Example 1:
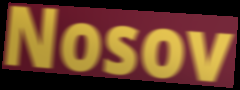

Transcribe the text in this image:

Nosov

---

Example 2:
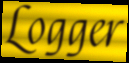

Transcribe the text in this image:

Logger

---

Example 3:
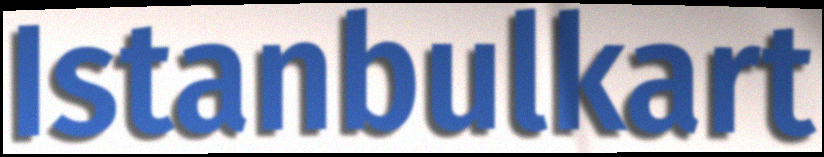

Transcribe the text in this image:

Istanbulkart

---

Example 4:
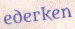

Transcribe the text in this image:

ederken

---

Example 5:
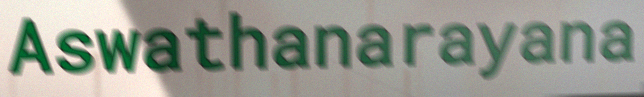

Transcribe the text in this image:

Aswathanarayana